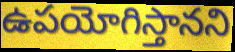
ఉపయోగిస్తానని